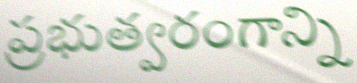
ప్రభుత్వరంగాన్ని